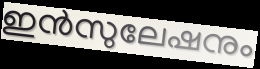
ഇൻസുലേഷനും